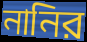
নানির